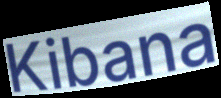
Kibana